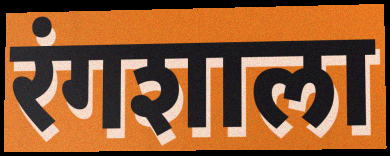
रंगशाला